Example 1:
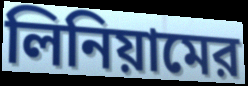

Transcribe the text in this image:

লিনিয়ামের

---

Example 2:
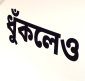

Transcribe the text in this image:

ধুঁকলেও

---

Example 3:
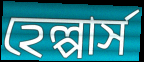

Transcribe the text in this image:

হেল্পার্স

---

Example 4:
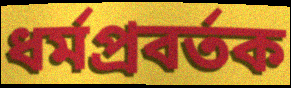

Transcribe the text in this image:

ধর্মপ্রবর্তক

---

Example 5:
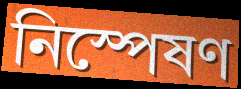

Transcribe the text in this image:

নিস্পেষণ